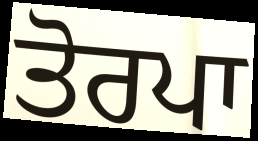
ਤੋਰਪਾ